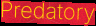
Predatory